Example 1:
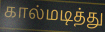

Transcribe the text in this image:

கால்மடித்து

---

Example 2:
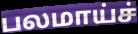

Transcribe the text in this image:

பலமாய்ச்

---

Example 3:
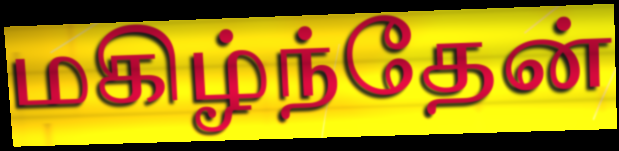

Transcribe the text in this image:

மகிழ்ந்தேன்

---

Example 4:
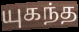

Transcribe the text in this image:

யுகந்த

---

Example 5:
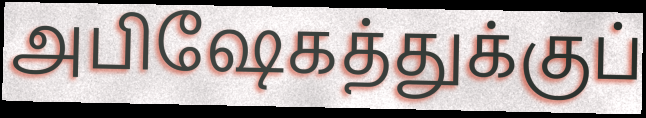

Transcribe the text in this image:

அபிஷேகத்துக்குப்